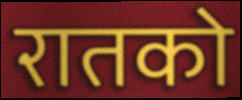
रातको